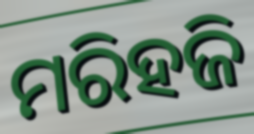
ମରିହଜି